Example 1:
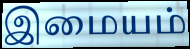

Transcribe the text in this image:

இமையம்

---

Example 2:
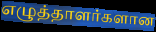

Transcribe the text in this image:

எழுத்தாளர்களான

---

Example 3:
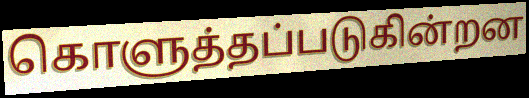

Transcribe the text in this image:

கொளுத்தப்படுகின்றன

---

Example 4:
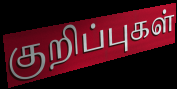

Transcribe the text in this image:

குறிப்புகள்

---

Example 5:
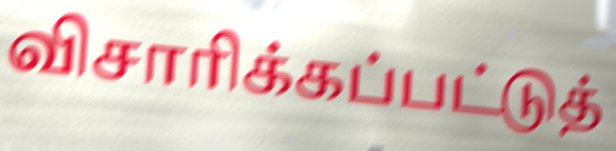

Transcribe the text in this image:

விசாரிக்கப்பட்டுத்